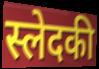
स्लेदकी